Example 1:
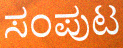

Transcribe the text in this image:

ಸಂಪುಟ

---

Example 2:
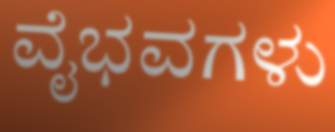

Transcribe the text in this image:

ವೈಭವಗಳು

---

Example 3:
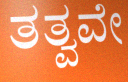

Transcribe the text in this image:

ತತ್ವವೇ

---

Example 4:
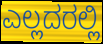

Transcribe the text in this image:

ಎಲ್ಲದರಲ್ಲಿ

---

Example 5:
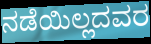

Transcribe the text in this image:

ನಡೆಯಿಲ್ಲದವರ